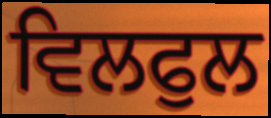
ਵਿਲਫੁਲ